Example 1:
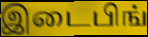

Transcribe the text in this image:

இடைபிங்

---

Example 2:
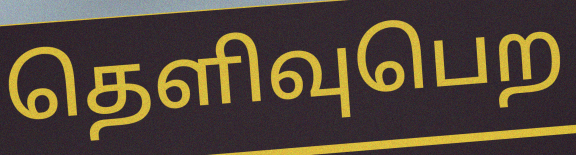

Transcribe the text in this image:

தெளிவுபெற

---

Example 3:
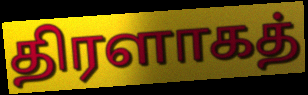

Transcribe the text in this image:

திரளாகத்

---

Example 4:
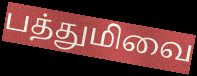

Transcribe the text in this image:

பத்துமிவை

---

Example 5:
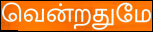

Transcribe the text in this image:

வென்றதுமே